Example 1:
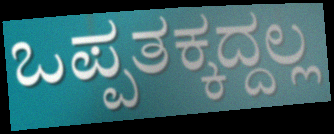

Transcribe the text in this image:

ಒಪ್ಪತಕ್ಕದ್ದಲ್ಲ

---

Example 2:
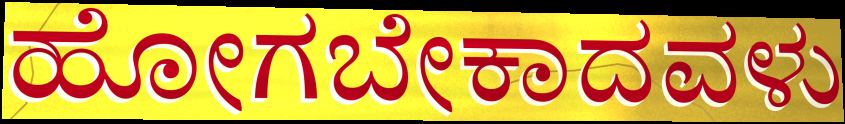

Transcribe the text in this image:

ಹೋಗಬೇಕಾದವಳು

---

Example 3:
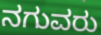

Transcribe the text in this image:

ನಗುವರು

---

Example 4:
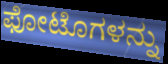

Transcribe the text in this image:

ಫೋಟೊಗಳನ್ನು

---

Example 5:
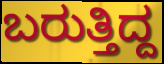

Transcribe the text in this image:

ಬರುತ್ತಿದ್ದ